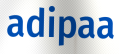
adipaa